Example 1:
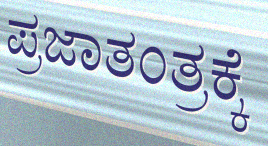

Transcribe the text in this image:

ಪ್ರಜಾತಂತ್ರಕ್ಕೆ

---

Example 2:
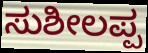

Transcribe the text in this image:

ಸುಶೀಲಪ್ಪ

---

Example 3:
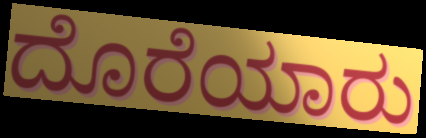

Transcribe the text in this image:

ದೊರೆಯಾರು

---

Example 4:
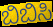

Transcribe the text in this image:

ಬಿಬಿಸಿ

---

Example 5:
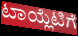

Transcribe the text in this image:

ಟಾಯ್ಲೆಟಿಗೆ